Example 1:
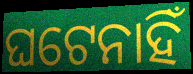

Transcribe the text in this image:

ଘଟେନାହିଁ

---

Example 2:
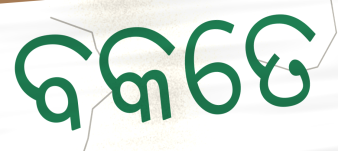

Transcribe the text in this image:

ବକତେ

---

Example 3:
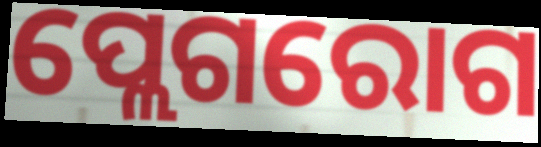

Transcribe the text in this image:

ପ୍ଲେଗରୋଗ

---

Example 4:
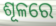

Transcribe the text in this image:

ଶୂଳରେ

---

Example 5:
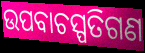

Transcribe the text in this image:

ଉପବାଚସ୍ପତିଗଣ